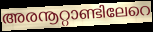
അരനൂറ്റാണ്ടിലേറെ